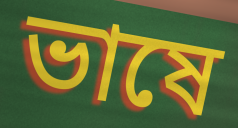
ভাষে